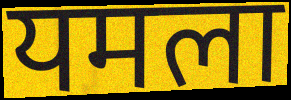
यमला